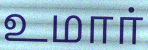
உமார்